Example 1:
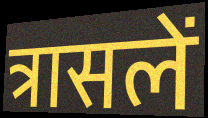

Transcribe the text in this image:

त्रासलें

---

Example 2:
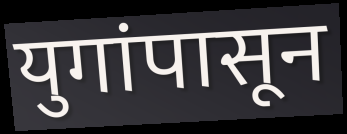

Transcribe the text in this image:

युगांपासून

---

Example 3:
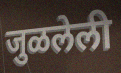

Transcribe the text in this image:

जुळलेली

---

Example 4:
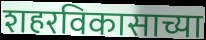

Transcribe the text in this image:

शहरविकासाच्या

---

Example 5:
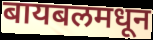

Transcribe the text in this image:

बायबलमधून